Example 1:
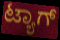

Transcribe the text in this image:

ಟ್ಯಾಗ್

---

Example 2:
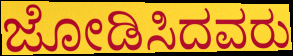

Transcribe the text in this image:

ಜೋಡಿಸಿದವರು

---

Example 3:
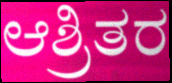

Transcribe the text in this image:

ಆಶ್ರಿತರ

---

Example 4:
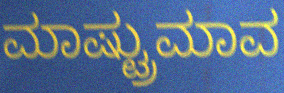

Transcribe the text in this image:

ಮಾಷ್ಟ್ರುಮಾವ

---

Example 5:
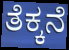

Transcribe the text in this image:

ತೆಕ್ಕನೆ